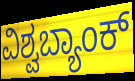
ವಿಶ್ವಬ್ಯಾಂಕ್